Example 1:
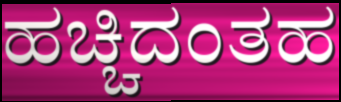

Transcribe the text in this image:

ಹಚ್ಚಿದಂತಹ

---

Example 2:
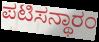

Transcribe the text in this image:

ಪಟಿಸನ್ಥಾರಂ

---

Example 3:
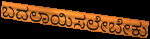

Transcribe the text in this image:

ಬದಲಾಯಿಸಲೇಬೇಕು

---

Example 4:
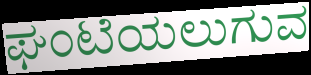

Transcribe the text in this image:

ಘಂಟೆಯಲುಗುವ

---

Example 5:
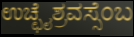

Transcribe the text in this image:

ಉಚ್ಛೈಶ್ರವಸ್ಸೆಂಬ